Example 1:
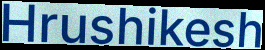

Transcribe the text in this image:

Hrushikesh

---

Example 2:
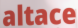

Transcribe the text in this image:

altace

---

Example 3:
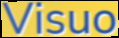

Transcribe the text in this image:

Visuo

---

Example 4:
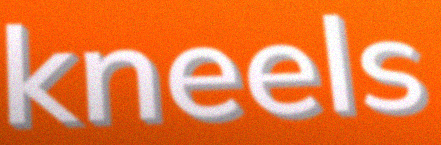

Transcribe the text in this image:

kneels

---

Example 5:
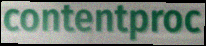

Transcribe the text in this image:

contentproc